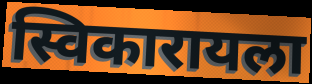
स्विकारायला